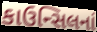
કાઉન્સિલનાં